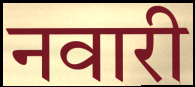
नवारी